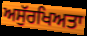
ਅਸੁੱਰਖਿਅਤਾ